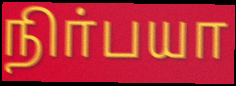
நிர்பயா